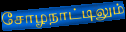
சோழநாட்டிலும்